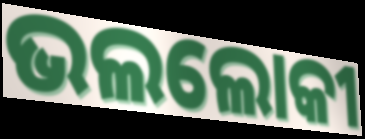
ଭଲଲୋକୀ